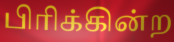
பிரிக்கின்ற